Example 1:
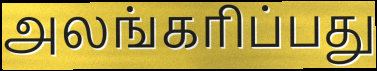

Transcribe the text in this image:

அலங்கரிப்பது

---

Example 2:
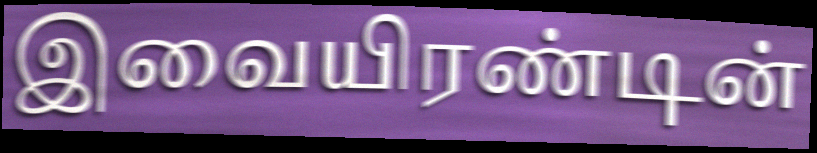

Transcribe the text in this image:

இவையிரண்டின்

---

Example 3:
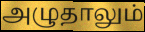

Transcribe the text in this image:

அழுதாலும்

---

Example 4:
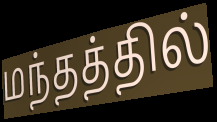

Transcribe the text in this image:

மந்தத்தில்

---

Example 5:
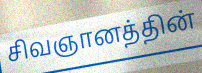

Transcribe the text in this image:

சிவஞானத்தின்